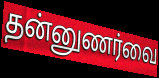
தன்னுணர்வை